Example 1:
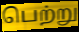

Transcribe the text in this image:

பெற்று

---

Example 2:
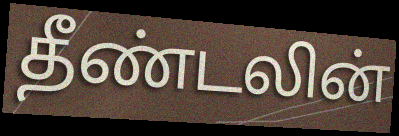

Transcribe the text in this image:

தீண்டலின்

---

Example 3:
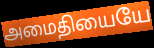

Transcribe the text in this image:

அமைதியையே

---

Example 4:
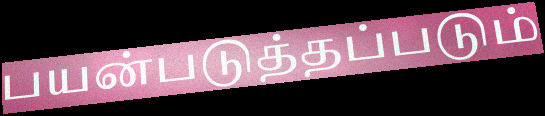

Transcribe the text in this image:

பயன்படுத்தப்படும்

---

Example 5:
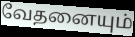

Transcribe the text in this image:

வேதனையும்